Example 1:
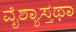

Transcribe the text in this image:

ವೈಶ್ಯಾಸ್ತಥಾ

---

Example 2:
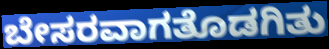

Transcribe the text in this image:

ಬೇಸರವಾಗತೊಡಗಿತು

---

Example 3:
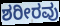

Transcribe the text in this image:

ಶರೀರವು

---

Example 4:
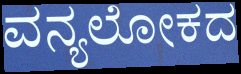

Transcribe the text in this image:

ವನ್ಯಲೋಕದ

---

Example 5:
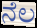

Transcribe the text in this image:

ನೆಲ